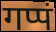
गप्पं